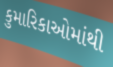
કુમારિકાઓમાંથી